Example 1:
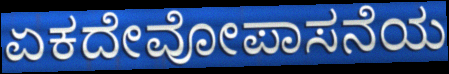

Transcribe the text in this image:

ಏಕದೇವೋಪಾಸನೆಯ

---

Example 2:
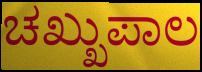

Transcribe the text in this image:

ಚಖ್ಖುಪಾಲ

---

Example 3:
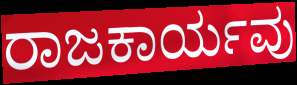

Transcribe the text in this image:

ರಾಜಕಾರ್ಯವು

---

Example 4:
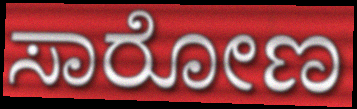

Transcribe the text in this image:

ಸಾರೋಣ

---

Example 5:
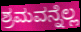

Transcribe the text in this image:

ಶ್ರಮವನ್ನೆಲ್ಲ